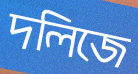
দলিজে